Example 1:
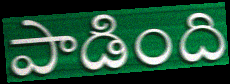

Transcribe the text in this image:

పాడింది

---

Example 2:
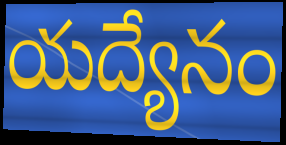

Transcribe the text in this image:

యద్యేనం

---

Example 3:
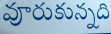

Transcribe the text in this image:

వూరుకున్నది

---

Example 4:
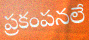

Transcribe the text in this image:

ప్రకంపనలే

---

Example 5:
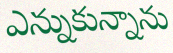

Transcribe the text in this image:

ఎన్నుకున్నాను